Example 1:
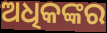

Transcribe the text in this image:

ଅଧିକଙ୍କର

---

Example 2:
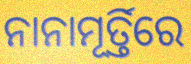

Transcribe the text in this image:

ନାନାମୂର୍ତ୍ତିରେ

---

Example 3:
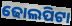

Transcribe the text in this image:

ଢୋଲପିଟା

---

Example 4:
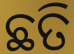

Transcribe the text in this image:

ଛତି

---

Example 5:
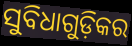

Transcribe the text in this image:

ସୁବିଧାଗୁଡ଼ିକର